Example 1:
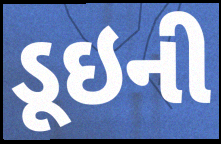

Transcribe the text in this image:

ડૂઇની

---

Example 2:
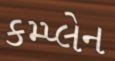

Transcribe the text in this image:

કમ્પ્લેન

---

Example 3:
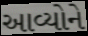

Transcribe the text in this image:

આવ્યોને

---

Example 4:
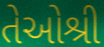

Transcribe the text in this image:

તેઓશ્રી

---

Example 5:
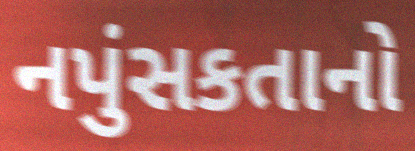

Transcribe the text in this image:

નપુંસકતાનો